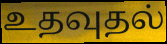
உதவுதல்